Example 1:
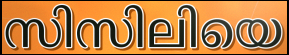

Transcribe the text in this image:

സിസിലിയെ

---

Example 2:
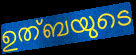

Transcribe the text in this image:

ഉത്ബയുടെ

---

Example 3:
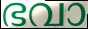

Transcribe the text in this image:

ഭവാ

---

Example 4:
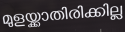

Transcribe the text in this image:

മുളയ്ക്കാതിരിക്കില്ല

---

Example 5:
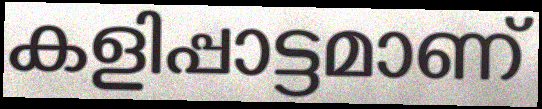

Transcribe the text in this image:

കളിപ്പാട്ടമാണ്